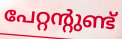
പേറ്റന്റുണ്ട്